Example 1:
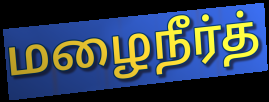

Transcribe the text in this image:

மழைநீர்த்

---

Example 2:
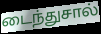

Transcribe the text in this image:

டைந்துசால்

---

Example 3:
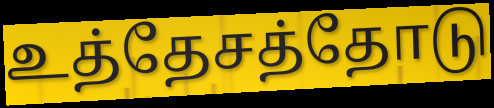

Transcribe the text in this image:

உத்தேசத்தோடு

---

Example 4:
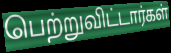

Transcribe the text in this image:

பெற்றுவிட்டார்கள்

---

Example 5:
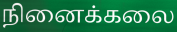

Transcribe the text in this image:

நினைக்கலை